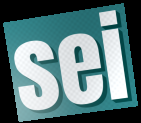
sei